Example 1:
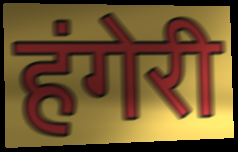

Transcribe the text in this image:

हंगेरी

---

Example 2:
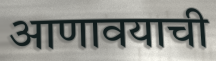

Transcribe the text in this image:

आणावयाची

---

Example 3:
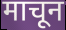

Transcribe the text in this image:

माचून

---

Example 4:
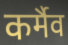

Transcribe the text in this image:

कर्मैव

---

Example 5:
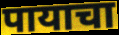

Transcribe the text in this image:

पायाचा